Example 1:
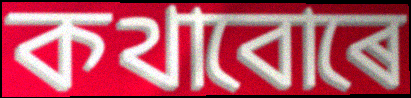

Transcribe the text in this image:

কথাবোৰে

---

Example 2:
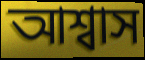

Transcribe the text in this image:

আশ্বাস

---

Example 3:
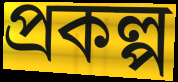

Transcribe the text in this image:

প্ৰকল্প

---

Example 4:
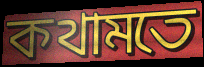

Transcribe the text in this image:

কথামতে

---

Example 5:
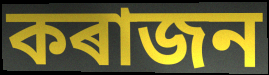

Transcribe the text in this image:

কৰাজন